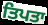
ਤਿਪਤਾ